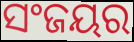
ସଂଜୟର